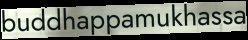
buddhappamukhassa